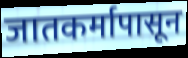
जातकर्मापासून